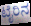
ಟೈರಿನ